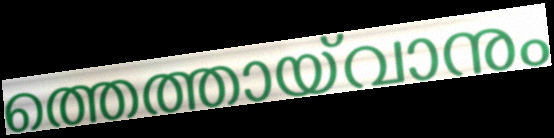
ത്തെത്തായ്‌വാനും